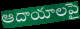
ఆదాయాలపై